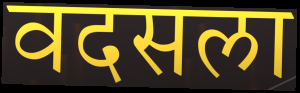
वदसला